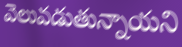
వెలువడుతున్నాయని